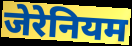
जेरेनियम